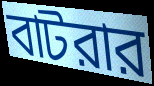
বাটরার